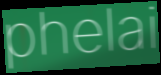
phelai